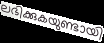
ലഭിക്കുകയുണ്ടായി